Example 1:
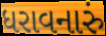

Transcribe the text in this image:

ધરાવનારું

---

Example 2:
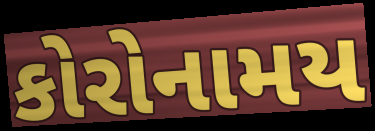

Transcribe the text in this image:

કોરોનામય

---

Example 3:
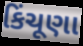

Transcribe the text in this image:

કિંચૂણા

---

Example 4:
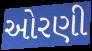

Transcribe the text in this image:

ઓરણી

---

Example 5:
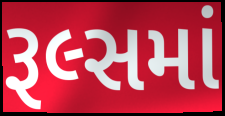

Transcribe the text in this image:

રૂલ્સમાં